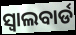
ସ୍ୱାଲବାର୍ଡ